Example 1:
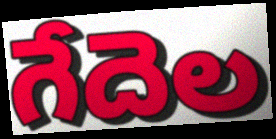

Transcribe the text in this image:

గేదెల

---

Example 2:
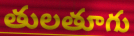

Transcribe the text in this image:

తులతూగు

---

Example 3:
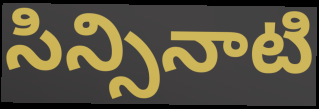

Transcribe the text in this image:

సిన్సినాటి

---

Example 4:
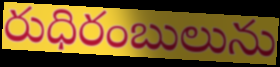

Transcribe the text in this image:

రుధిరంబులును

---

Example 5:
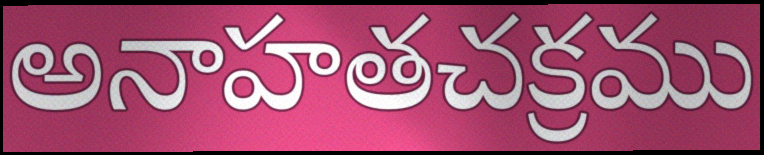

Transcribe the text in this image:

అనాహతచక్రము